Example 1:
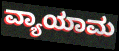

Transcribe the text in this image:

ವ್ಯಾಯಾಮ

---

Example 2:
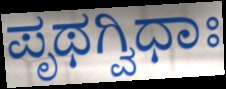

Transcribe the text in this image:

ಪೃಥಗ್ವಿಧಾಃ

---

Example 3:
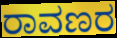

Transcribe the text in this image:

ರಾವಣರ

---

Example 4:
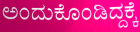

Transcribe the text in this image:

ಅಂದುಕೊಂಡಿದ್ದಕ್ಕೆ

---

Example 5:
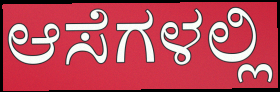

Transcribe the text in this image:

ಆಸೆಗಳಲ್ಲಿ